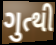
ગુત્થી